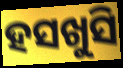
ହସଖୁସି